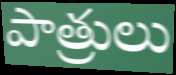
పాత్రులు